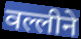
वल्लीने